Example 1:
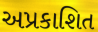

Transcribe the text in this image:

અપ્રકાશિત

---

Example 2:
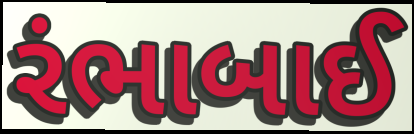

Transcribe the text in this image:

રંભાબાઈ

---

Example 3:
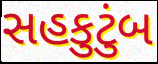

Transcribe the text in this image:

સહકુટુંબ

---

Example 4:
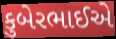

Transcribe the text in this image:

કુબેરભાઈએ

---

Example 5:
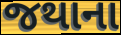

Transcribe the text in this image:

જથાના